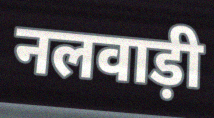
नलवाड़ी